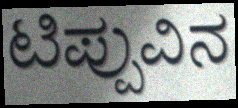
ಟಿಪ್ಪುವಿನ